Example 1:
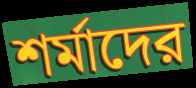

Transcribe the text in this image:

শর্মাদের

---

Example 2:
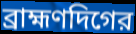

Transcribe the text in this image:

ব্রাহ্মণদিগের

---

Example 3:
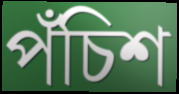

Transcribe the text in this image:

পঁচিশ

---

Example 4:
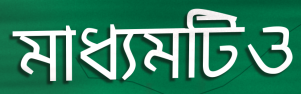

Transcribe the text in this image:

মাধ্যমটিও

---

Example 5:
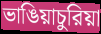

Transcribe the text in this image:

ভাঙিয়াচুরিয়া